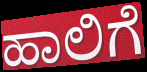
ಹಾಲಿಗೆ